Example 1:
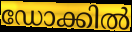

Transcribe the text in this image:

ഡോക്കിൽ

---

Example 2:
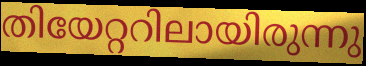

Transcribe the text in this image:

തിയേറ്ററിലായിരുന്നു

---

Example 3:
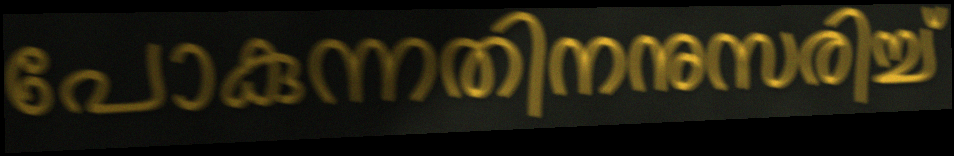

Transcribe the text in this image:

പോകുന്നതിനനുസരിച്ച്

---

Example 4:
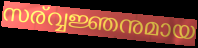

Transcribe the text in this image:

സര്വ്വജ്ഞനുമായ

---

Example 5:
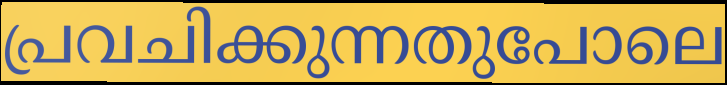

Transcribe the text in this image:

പ്രവചിക്കുന്നതുപോലെ